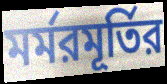
মর্মরমূর্তির